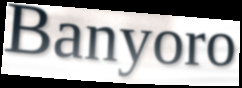
Banyoro